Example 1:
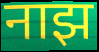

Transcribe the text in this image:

नाझ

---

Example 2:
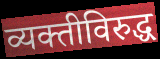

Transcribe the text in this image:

व्यक्तीविरुद्ध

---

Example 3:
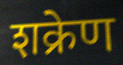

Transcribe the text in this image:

शक्रेण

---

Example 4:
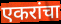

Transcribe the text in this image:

एकरांचा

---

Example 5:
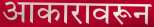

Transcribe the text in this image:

आकारावरून